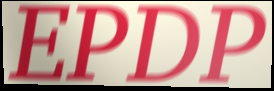
EPDP